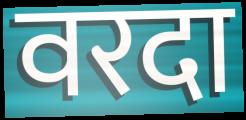
वरदा